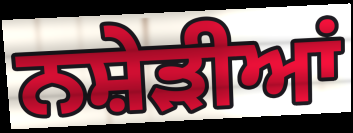
ਨਸ਼ੇੜੀਆਂ